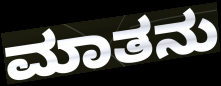
ಮಾತನು